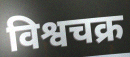
विश्वचक्र